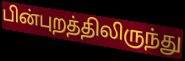
பின்புறத்திலிருந்து